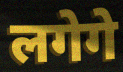
लगेगे